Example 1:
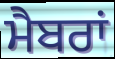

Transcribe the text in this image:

ਮੈਬਰਾਂ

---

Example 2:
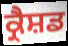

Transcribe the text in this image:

ਕ੍ਰੈਸ਼ਡ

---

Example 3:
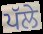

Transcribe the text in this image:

ਪੱਲੇ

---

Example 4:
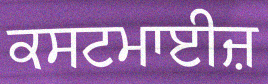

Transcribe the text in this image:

ਕਸਟਮਾਈਜ਼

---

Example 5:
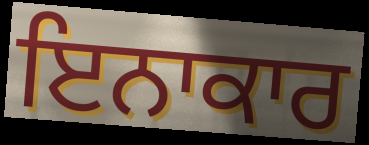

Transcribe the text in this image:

ਇਨਾਕਾਰ